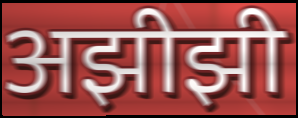
अझीझी